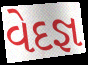
વેદજ્ઞ